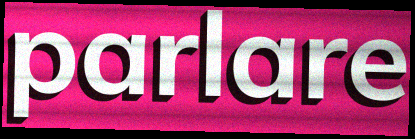
parlare